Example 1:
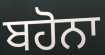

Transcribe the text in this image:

ਬਹੋਨਾ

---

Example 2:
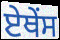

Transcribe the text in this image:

ਏਥੇਂਸ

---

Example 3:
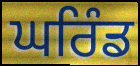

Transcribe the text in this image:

ਘਰਿੰਡ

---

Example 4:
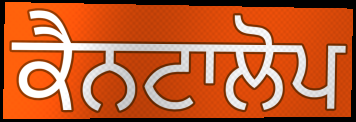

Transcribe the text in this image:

ਕੈਨਟਾਲੋਪ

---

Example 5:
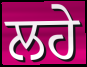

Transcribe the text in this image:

ਲਹੇ